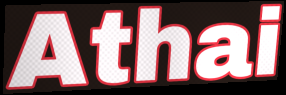
Athai